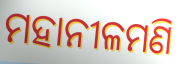
ମହାନୀଳମଣି